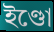
ইণ্ডো